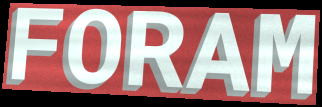
FORAM